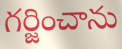
గర్జించాను